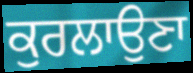
ਕੁਰਲਾਉਣਾ